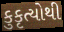
કુકૃત્યોથી